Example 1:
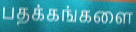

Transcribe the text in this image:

பதக்கங்களை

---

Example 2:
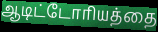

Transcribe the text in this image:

ஆடிட்டோரியத்தை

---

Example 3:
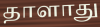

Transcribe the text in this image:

தாளாது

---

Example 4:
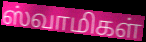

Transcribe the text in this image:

ஸ்வாமிகள்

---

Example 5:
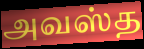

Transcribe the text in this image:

அவஸ்த